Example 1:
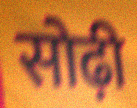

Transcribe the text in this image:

सोढ़ी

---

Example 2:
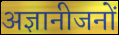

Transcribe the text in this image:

अज्ञानीजनों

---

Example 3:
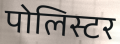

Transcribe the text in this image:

पोलिस्टर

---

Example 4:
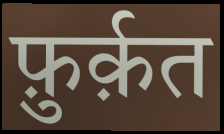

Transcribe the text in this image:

फ़ुर्क़त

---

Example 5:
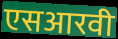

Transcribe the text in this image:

एसआरवी